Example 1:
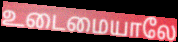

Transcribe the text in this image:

உடைமையாலே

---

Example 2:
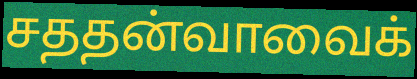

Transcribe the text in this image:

சததன்வாவைக்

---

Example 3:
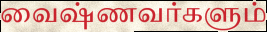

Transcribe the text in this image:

வைஷ்ணவர்களும்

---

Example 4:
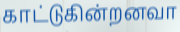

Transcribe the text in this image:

காட்டுகின்றனவா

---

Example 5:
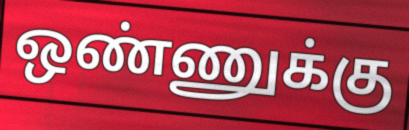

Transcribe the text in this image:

ஒண்ணுக்கு